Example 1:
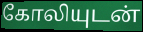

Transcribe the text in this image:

கோலியுடன்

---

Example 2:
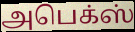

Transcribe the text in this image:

அபெக்ஸ்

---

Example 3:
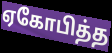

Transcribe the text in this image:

ஏகோபித்த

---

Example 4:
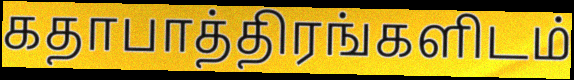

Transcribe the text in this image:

கதாபாத்திரங்களிடம்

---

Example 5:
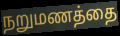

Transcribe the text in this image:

நறுமணத்தை